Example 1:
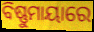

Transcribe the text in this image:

ବିଷ୍ଣୁମାୟାରେ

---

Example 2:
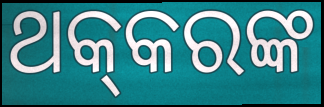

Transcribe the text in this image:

ଥକ୍‌କରଙ୍କ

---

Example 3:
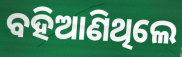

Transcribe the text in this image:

ବହିଆଣିଥିଲେ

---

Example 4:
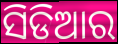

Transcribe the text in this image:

ସିଡିଆର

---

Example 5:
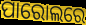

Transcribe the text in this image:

ପାରୋଲରେ